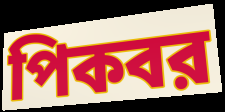
পিকবর